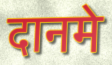
दानमे